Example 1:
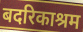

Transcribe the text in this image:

बदरिकाश्रम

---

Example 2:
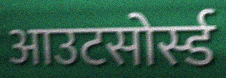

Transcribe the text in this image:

आउटसोर्स्ड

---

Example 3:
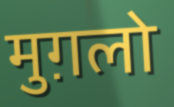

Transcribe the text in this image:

मुग़लो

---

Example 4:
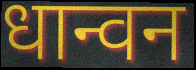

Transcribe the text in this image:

धान्वन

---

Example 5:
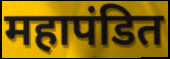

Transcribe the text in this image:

महापंडित